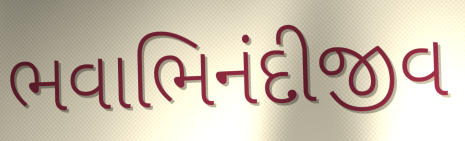
ભવાભિનંદીજીવ